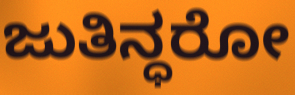
ಜುತಿನ್ಧರೋ